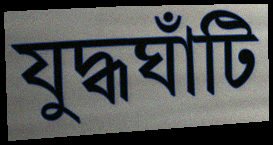
যুদ্ধঘাঁটি